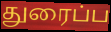
துரைப்ப